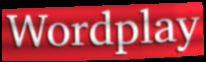
Wordplay